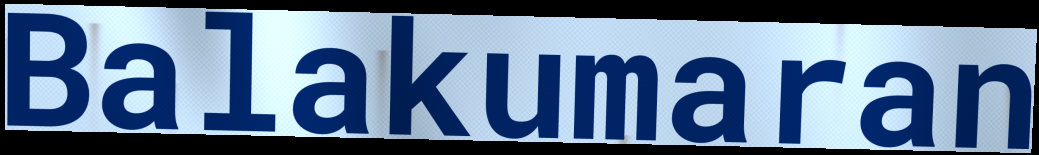
Balakumaran